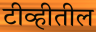
टीव्हीतील